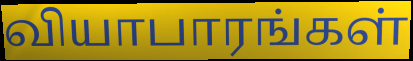
வியாபாரங்கள்